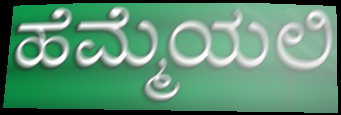
ಹೆಮ್ಮೆಯಲಿ